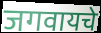
जगवायचे